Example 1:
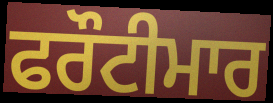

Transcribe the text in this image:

ਫਰੌਟੀਮਾਰ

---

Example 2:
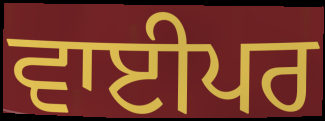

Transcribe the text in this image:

ਵਾਈਪਰ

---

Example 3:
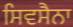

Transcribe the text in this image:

ਸਿਵਸੈਨਾ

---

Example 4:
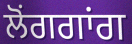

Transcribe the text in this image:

ਲੋਂਗਗਾਂਗ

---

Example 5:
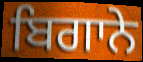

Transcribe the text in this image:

ਬਿਗਾਨੇ